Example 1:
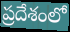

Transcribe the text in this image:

ప్రదేశంలో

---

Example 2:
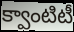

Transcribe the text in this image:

క్వాంటిటీ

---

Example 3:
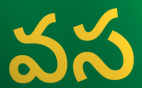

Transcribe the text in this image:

వస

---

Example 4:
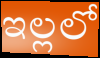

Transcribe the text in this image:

ఇల్లలో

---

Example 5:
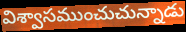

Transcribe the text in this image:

విశ్వాసముంచుచున్నాడు